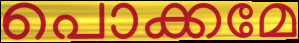
പൊക്കമേ